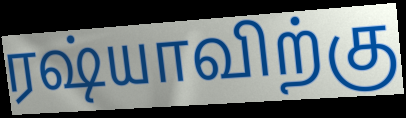
ரஷ்யாவிற்கு